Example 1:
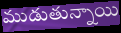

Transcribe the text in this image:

ముడుతున్నాయి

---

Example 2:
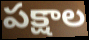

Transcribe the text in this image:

పక్షాల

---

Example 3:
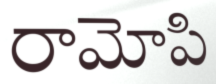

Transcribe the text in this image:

రామోపి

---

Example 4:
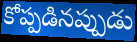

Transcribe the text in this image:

కోప్పడినప్పుడు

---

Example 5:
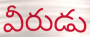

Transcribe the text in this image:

వీరుడు